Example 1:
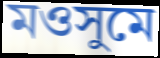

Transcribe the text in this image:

মওসুমে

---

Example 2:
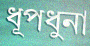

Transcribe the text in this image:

ধূপধুনা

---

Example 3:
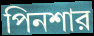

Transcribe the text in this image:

পিনশার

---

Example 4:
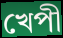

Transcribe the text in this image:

খেপী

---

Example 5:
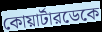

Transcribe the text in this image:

কোয়ার্টারডেকে